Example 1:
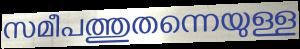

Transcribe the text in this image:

സമീപത്തുതന്നെയുള്ള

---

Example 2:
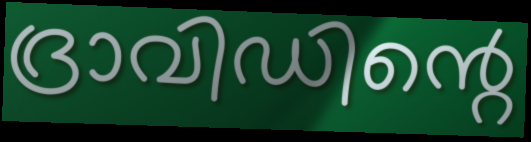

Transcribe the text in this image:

ദ്രാവിഡിന്റെ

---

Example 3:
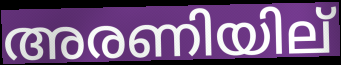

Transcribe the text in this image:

അരണിയില്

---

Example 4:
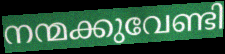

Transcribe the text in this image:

നന്മക്കുവേണ്ടി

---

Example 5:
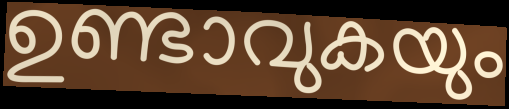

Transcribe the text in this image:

ഉണ്ടാവുകയും